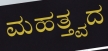
ಮಹತ್ತ್ವದ